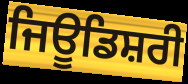
ਜਿਊਡਿਸ਼ਰੀ